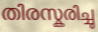
തിരസ്കരിച്ചു